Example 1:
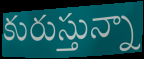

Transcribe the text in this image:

కురుస్తున్నా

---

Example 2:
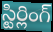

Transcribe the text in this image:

స్టిర్లింగ్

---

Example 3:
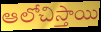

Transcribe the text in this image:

ఆలోచిస్తాయి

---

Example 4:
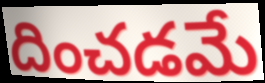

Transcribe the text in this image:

దించడమే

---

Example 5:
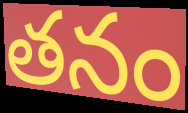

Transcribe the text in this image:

తనం